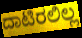
ದಾಟಿರಲಿಲ್ಲ